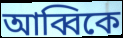
আব্বিকে